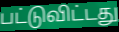
பட்டுவிட்டது